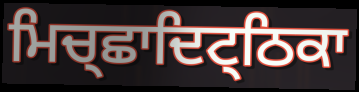
ਮਿਚ੍ਛਾਦਿਟ੍ਠਿਕਾ